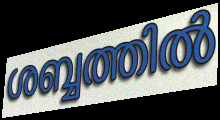
ശബ്ബത്തിൽ